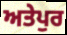
ਅਤੇਪੁਰ